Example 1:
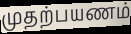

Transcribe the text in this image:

முதற்பயணம்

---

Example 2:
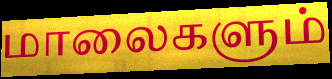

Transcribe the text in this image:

மாலைகளும்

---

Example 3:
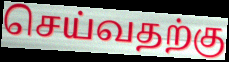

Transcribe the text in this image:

செய்வதற்கு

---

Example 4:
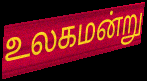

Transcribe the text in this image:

உலகமன்று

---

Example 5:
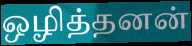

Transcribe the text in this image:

ஒழித்தனன்